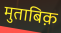
मुताबिक़